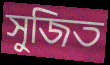
সুজিত